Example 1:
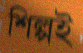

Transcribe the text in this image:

শিল্পই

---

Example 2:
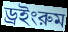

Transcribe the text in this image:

ড্রইংরুম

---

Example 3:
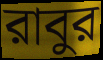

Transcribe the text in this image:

রাবুর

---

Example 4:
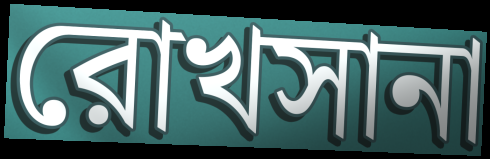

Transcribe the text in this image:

রোখসানা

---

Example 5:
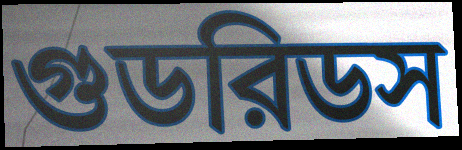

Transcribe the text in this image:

গুডরিডস